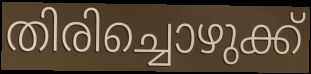
തിരിച്ചൊഴുക്ക്